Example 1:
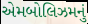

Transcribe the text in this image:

એમબોલિઝમનું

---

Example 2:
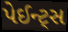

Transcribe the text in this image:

પેઈન્ટ્સ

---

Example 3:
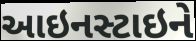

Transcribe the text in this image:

આઇનસ્ટાઇને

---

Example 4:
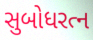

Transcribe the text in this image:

સુબોધરત્ન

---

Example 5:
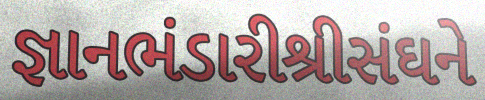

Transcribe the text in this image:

જ્ઞાનભંડારીશ્રીસંઘને